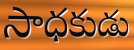
సాధకుడు